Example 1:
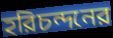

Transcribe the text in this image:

হরিচন্দনের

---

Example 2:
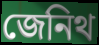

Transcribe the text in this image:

জেনিথ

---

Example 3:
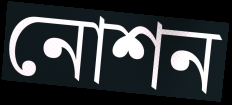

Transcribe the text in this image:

নোশন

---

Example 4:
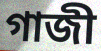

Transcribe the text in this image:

গাজী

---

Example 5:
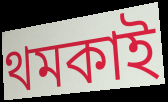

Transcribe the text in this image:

থমকাই